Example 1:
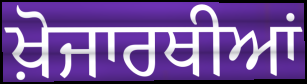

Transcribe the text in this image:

ਖ਼ੋਜਾਰਥੀਆਂ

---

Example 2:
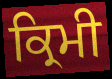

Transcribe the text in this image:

ਕ੍ਰਿਮੀ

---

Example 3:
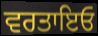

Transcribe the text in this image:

ਵਰਤਾਇਓ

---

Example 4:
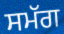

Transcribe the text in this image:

ਸਮੱਗ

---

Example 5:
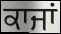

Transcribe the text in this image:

ਕਾਜਾਂ